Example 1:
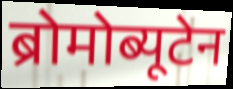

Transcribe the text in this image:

ब्रोमोब्यूटेन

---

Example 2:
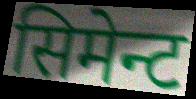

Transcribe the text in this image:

सिमेन्ट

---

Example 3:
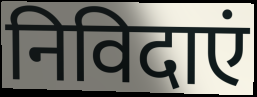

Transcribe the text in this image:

निविदाएं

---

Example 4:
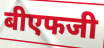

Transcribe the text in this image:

बीएफजी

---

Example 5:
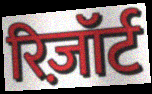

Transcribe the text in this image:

रिज़ॉर्ट